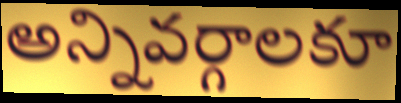
అన్నివర్గాలకూ